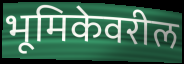
भूमिकेवरील